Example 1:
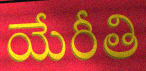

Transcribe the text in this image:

యేరీతి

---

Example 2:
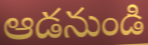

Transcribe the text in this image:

ఆడనుండి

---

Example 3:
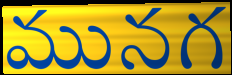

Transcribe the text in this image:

మునగ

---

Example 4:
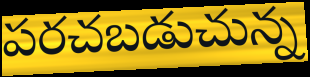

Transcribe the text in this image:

పరచబడుచున్న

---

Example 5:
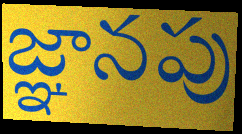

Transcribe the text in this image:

జ్ఞానపు